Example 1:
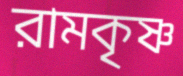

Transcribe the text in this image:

রামকৃষ্ণ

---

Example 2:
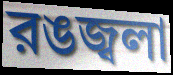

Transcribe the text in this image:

রঙজ্বলা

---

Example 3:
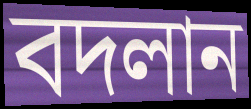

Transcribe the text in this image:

বদলান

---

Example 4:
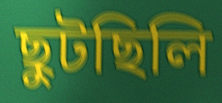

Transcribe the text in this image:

ছুটছিলি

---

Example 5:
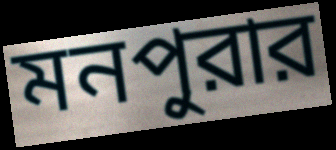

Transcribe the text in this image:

মনপুরার